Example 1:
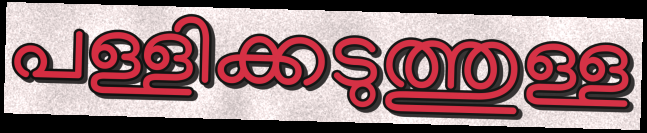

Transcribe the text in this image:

പള്ളിക്കടുത്തുള്ള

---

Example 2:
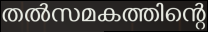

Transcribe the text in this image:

തൽസമകത്തിന്റെ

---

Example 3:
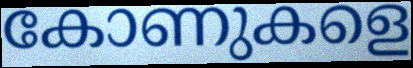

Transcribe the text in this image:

കോണുകളെ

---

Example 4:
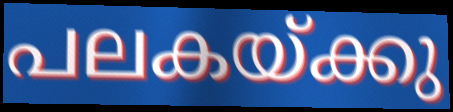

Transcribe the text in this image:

പലകയ്ക്കു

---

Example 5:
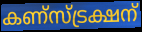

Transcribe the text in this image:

കണ്സ്ട്രക്ഷന്